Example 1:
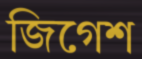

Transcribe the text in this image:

জিগেশ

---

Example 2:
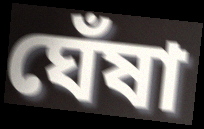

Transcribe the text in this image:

ঘেঁষা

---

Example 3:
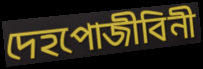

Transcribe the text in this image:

দেহপোজীবিনী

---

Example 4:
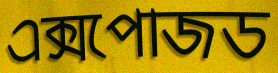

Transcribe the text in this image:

এক্সপোজড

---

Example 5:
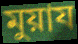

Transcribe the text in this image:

মুয়ায